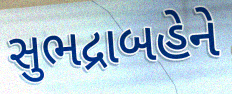
સુભદ્રાબહેને